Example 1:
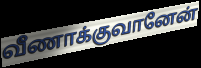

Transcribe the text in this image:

வீணாக்குவானேன்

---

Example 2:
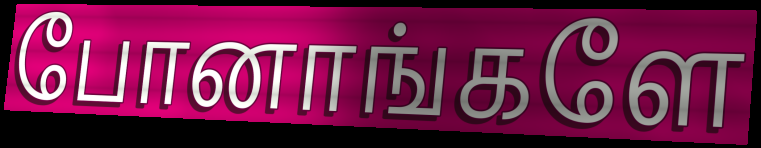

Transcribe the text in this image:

போனாங்களே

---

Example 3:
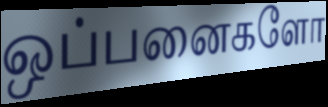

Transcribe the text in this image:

ஒப்பனைகளோ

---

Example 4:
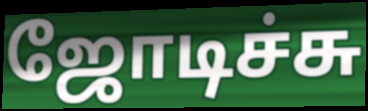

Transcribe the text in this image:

ஜோடிச்சு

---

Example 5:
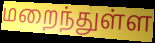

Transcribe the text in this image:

மறைந்துள்ள